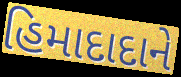
હિમાદાદાને